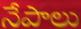
నేపాలు